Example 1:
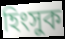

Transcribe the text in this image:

হিংসুক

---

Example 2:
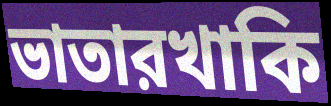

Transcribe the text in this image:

ভাতারখাকি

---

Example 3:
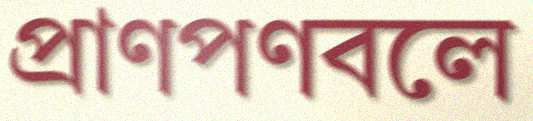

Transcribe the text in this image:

প্রাণপণবলে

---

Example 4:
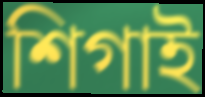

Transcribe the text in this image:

শিগাই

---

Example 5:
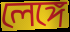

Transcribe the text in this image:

লেঙ্গে